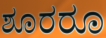
ಶೂರರೂ